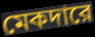
মেকদারে